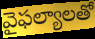
వైఫల్యాలతో